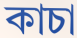
কাচা